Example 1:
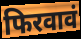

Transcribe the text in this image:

फिरवावं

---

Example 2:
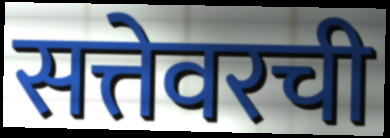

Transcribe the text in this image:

सत्तेवरची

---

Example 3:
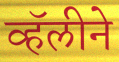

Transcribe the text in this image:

व्हॅलीने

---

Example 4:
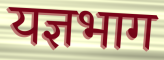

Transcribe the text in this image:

यज्ञभाग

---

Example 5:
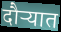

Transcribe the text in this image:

दौऱ्यात